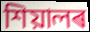
শিয়ালৰ